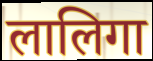
लालिगा